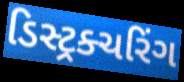
ડિસ્ટ્રક્ચરિંગ